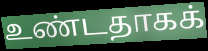
உண்டதாகக்